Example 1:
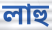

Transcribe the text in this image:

লাহু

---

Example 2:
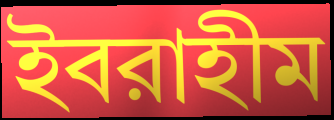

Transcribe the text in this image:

ইবরাহীম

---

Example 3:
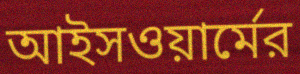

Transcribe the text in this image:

আইসওয়ার্মের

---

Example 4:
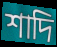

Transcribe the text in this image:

শাদি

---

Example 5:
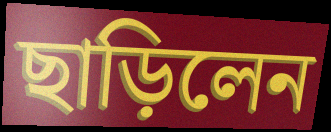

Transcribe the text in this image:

ছাড়িলেন